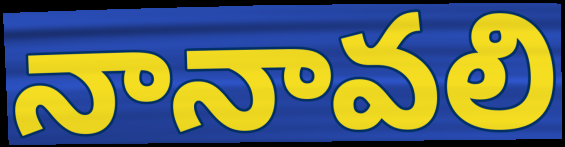
నానావలి